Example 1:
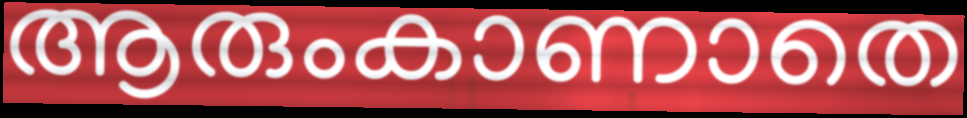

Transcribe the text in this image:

ആരുംകാണാതെ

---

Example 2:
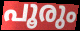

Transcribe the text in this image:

പൂരും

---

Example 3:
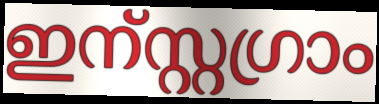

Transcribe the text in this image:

ഇന്സ്റ്റഗ്രാം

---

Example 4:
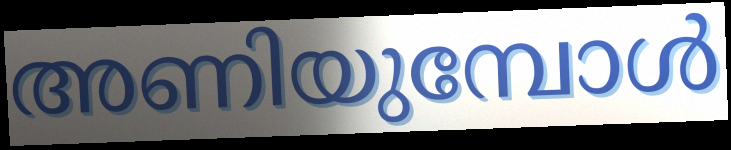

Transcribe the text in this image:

അണിയുമ്പോൾ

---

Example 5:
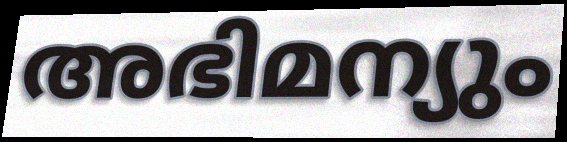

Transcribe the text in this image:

അഭിമന്യും